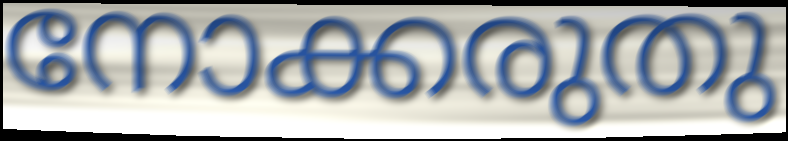
നോക്കരുതു